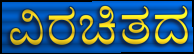
ವಿರಚಿತದ